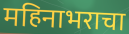
महिनाभराचा